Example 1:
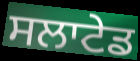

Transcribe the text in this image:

ਸਲਾਟੇਡ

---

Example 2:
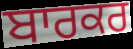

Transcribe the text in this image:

ਬਾਰਕਰ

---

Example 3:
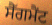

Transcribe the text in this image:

ਸੈੱਗਮੈਂਟ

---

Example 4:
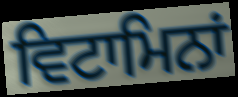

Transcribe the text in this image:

ਵਿਟਾਮਿਨਾਂ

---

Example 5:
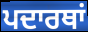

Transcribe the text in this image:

ਪਦਾਰਥਾਂ